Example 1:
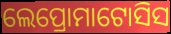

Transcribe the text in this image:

ଲେପ୍ରୋମାଟୋସିସ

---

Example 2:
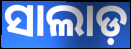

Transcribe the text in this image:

ସାଲାଡ଼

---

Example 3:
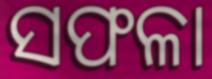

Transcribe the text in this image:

ସଫଳା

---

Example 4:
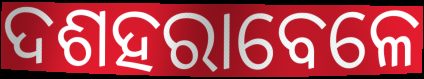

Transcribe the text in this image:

ଦଶହରାବେଳେ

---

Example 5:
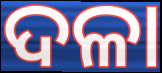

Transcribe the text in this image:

ଦଳା